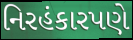
નિરહંકારપણે